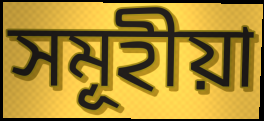
সমূহীয়া